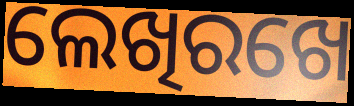
ଲେଖିରଖେ